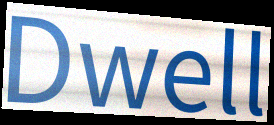
Dwell